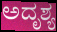
ಅದೃಶ್ಯ